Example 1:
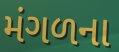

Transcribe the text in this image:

મંગળના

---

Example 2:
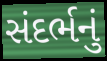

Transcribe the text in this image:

સંદર્ભનું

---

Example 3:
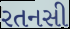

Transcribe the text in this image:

રતનસી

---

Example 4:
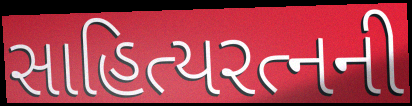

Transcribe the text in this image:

સાહિત્યરત્નની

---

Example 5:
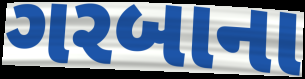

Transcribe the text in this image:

ગરબાના